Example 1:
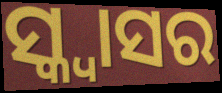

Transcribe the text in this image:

ସ୍କ୍ବାସର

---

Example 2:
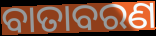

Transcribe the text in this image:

ବାତାବରଣ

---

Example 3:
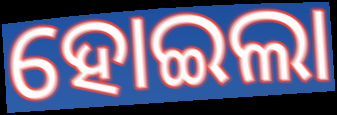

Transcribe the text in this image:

ହୋଇଲା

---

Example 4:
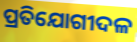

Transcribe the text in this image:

ପ୍ରତିଯୋଗୀଦଳ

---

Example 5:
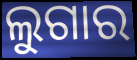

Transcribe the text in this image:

ଲୁଗାର